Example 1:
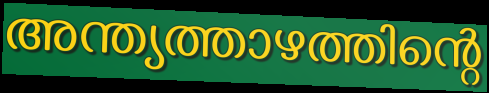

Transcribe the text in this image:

അന്ത്യത്താഴത്തിന്റെ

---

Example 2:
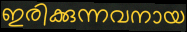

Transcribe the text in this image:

ഇരിക്കുന്നവനായ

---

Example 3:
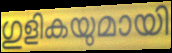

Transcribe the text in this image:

ഗുളികയുമായി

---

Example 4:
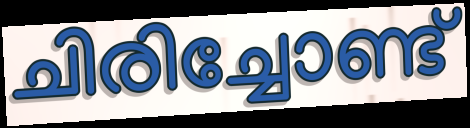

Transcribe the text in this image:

ചിരിച്ചോണ്ട്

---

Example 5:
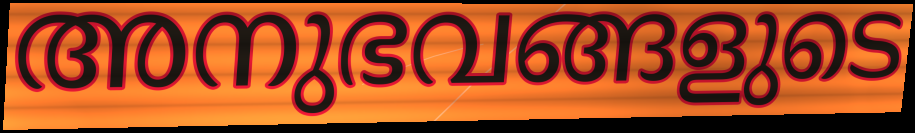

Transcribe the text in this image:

അനുഭവങ്ങളുടെ